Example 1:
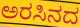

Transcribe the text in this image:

ಅರಸಿನದ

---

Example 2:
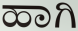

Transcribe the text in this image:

ಹಾಗಿ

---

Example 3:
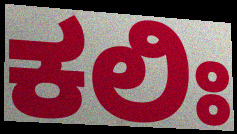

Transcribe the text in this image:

ಕಲಿಃ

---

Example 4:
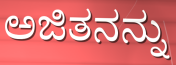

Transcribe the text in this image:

ಅಜಿತನನ್ನು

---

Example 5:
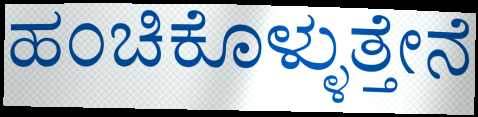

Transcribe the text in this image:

ಹಂಚಿಕೊಳ್ಳುತ್ತೇನೆ